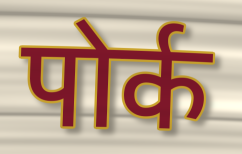
पोर्क